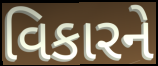
વિકારને